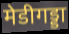
मेडीगड्डा